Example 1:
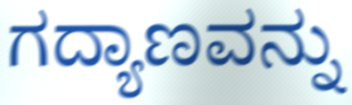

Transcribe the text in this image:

ಗದ್ಯಾಣವನ್ನು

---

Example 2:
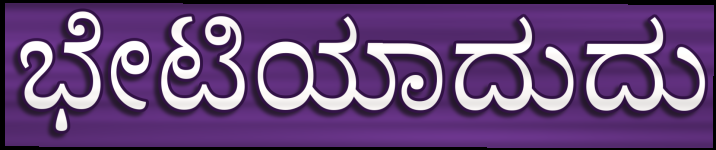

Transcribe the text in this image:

ಭೇಟಿಯಾದುದು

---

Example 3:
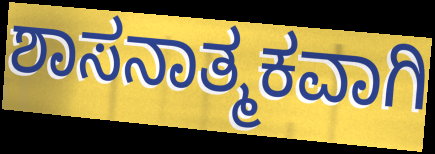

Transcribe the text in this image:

ಶಾಸನಾತ್ಮಕವಾಗಿ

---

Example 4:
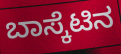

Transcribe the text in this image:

ಬಾಸ್ಕೆಟಿನ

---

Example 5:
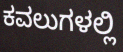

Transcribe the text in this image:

ಕವಲುಗಳಲ್ಲಿ